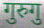
गुरुगु